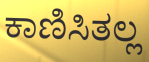
ಕಾಣಿಸಿತಲ್ಲ